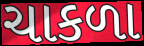
ચાકળા